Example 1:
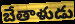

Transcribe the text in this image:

బేతాళుడు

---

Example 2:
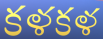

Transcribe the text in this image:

కళకళ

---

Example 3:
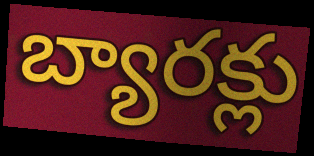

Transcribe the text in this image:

బ్యారక్లు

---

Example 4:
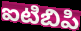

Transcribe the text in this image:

ఐటిబిపి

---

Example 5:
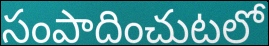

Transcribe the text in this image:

సంపాదించుటలో